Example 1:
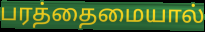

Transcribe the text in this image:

பரத்தைமையால்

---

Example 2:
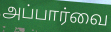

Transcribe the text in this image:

அப்பார்வை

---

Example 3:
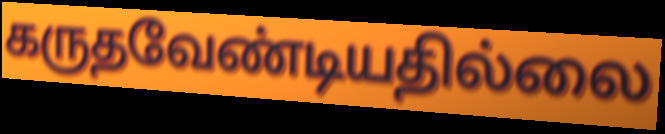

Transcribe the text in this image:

கருதவேண்டியதில்லை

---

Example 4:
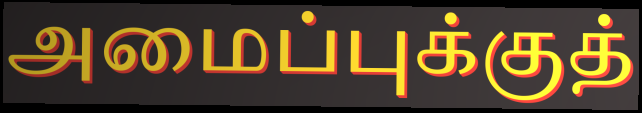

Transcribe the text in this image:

அமைப்புக்குத்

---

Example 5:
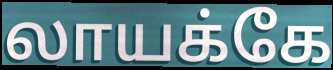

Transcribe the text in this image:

லாயக்கே